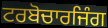
ਟਰਬੋਚਾਰਜਿੰਗ